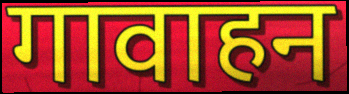
गावाहन